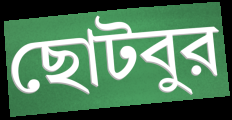
ছোটবুর